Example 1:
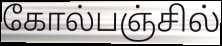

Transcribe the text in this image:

கோல்பஞ்சில்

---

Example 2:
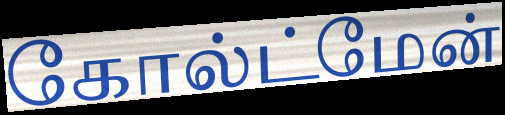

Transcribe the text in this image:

கோல்ட்மேன்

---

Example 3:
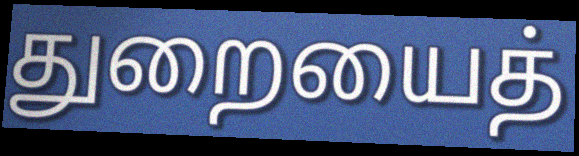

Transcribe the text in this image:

துறையைத்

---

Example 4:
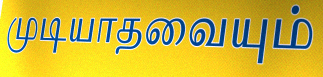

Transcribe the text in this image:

முடியாதவையும்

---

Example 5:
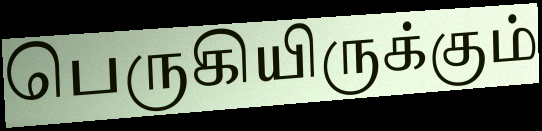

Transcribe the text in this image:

பெருகியிருக்கும்